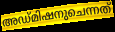
അഡ്മിഷനുചെന്നത്